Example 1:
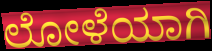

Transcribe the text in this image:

ಲೋಳೆಯಾಗಿ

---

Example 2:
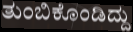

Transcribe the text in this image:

ತುಂಬಿಕೊಂಡಿದ್ದು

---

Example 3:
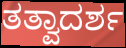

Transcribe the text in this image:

ತತ್ವಾದರ್ಶ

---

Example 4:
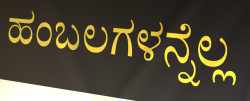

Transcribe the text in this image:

ಹಂಬಲಗಳನ್ನೆಲ್ಲ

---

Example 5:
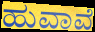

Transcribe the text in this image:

ಹುವಾವೆ